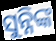
ସୁନ୍ନିଙ୍କ